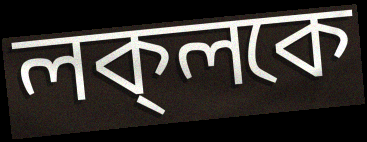
লক্‌লকে